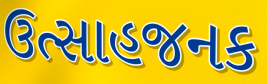
ઉત્સાહજનક